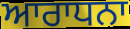
ਆਰਾਧਨਾ